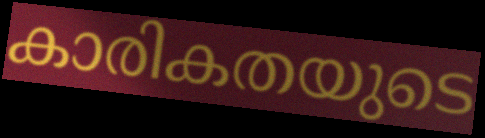
കാരികതയുടെ